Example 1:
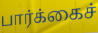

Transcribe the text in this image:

பார்க்கைச்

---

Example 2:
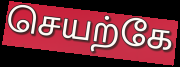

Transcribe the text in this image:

செயற்கே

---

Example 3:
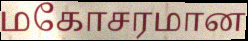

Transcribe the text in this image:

மகோசரமான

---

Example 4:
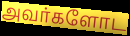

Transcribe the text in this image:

அவர்களோட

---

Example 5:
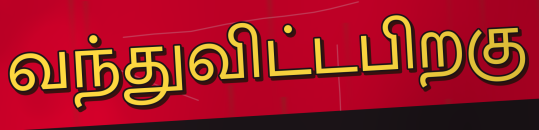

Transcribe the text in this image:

வந்துவிட்டபிறகு